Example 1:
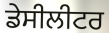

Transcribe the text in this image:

ਡੇਸੀਲੀਟਰ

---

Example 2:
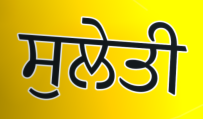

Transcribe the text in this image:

ਸੁਲੇਤੀ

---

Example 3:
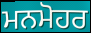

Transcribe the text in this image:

ਮਨਮੋਹਰ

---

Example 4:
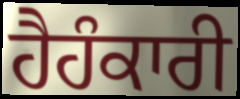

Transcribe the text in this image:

ਹੈਹੰਕਾਰੀ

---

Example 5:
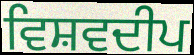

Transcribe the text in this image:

ਵਿਸ਼ਵਦੀਪ